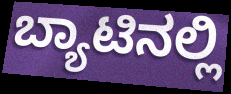
ಬ್ಯಾಟಿನಲ್ಲಿ